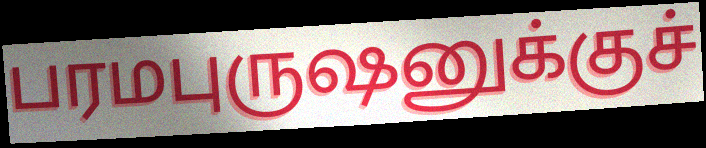
பரமபுருஷனுக்குச்